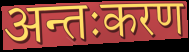
अन्तःकरण